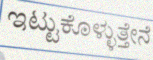
ಇಟ್ಟುಕೊಳ್ಳುತ್ತೇನೆ